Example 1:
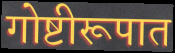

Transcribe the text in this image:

गोष्टीरूपात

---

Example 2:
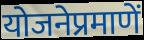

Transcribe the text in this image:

योजनेप्रमाणें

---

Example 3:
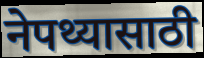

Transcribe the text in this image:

नेपथ्यासाठी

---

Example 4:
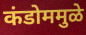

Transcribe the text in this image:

कंडोममुळे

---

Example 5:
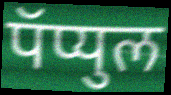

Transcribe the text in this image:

पॅप्युल